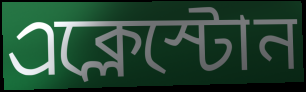
এক্লেস্টোন